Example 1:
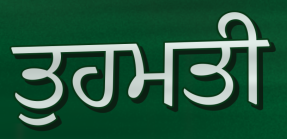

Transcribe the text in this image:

ਤੁਹਮਤੀ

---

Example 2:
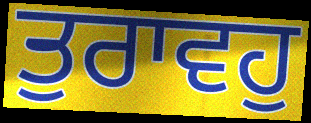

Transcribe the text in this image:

ਤੁਰਾਵਹੁ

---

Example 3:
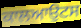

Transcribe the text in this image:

ਕਾਲਆਉਟਸ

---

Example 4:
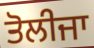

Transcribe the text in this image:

ਤੋਲੀਜਾ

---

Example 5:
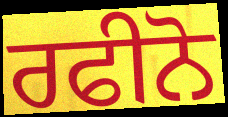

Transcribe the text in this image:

ਰਫੀਨੋ